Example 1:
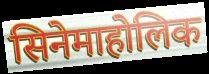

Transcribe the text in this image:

सिनेमाहोलिक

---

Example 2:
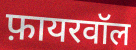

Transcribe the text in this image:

फ़ायरवॉल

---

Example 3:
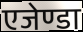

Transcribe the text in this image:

एजेण्डा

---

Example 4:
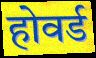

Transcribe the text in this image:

होवर्ड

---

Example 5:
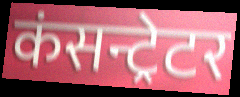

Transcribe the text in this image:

कंसन्ट्रेटर